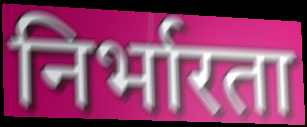
निर्भारता